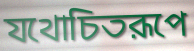
যথোচিতরূপে